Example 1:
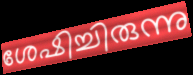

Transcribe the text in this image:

ശേഷിച്ചിരുന്നു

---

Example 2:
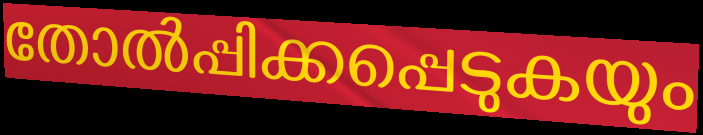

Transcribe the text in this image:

തോൽപ്പിക്കപ്പെടുകയും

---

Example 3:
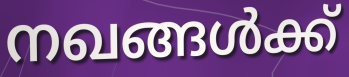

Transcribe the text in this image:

നഖങ്ങൾക്ക്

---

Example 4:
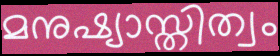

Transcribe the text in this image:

മനുഷ്യാസ്തിത്വം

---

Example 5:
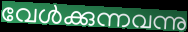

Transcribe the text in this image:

വേൾക്കുന്നവന്നു